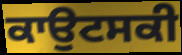
ਕਾਉਟਸਕੀ